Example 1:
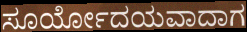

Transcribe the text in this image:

ಸೂರ್ಯೋದಯವಾದಾಗ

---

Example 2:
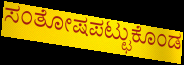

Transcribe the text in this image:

ಸಂತೋಷಪಟ್ಟುಕೊಂಡ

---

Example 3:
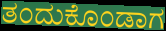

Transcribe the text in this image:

ತಂದುಕೊಂಡಾಗ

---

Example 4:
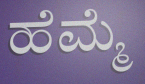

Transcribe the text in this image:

ಹೆಮ್ಮೆ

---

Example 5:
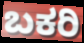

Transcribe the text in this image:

ಬಕರಿ